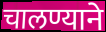
चालण्याने